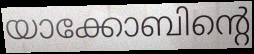
യാക്കോബിന്റെ